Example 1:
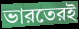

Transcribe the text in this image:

ভারতেরই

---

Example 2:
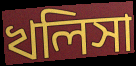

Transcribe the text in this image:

খলিসা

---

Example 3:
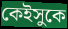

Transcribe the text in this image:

কেইসুকে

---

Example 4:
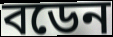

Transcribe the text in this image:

বডেন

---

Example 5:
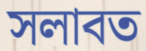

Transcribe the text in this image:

সলাবত